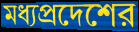
মধ্যপ্রদেশের